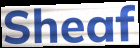
Sheaf